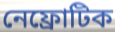
নেফ্রোটিক